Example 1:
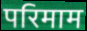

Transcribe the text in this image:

परिमाम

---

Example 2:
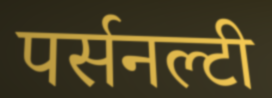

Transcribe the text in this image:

पर्सनल्टी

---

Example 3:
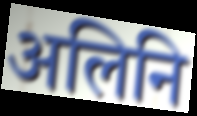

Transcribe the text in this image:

अलिनि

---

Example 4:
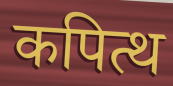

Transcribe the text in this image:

कपित्थ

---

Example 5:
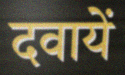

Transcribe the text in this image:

दवायें